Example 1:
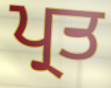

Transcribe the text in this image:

ਪ੍ਰਤ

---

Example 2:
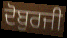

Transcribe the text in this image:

ਦੋਬੁਰਜੀ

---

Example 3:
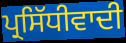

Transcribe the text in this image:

ਪ੍ਰਸਿੱਧੀਵਾਦੀ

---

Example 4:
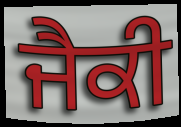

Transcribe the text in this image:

ਜੈਕੀ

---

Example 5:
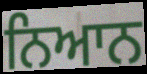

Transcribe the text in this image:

ਨਿਆਨ